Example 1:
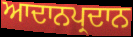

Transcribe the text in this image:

ਆਦਾਨਪ੍ਰਦਾਨ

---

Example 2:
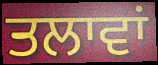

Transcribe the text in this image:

ਤਲਾਵਾਂ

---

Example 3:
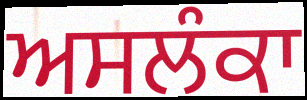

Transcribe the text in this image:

ਅਸਲੰਕਾ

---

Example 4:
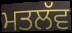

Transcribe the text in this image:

ਮਤਲੱਵ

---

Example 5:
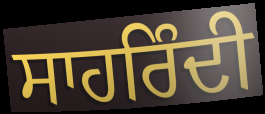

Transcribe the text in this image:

ਸਾਹਰਿੰਦੀ